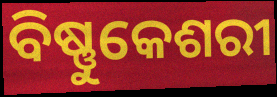
ବିଷ୍ଣୁକେଶରୀ